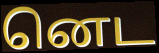
னெட